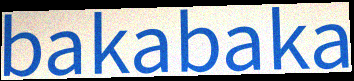
bakabaka